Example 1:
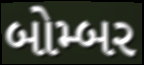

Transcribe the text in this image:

બોમ્બર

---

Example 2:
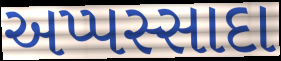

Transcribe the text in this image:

અપ્પસ્સાદા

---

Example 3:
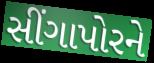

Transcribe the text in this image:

સીંગાપોરને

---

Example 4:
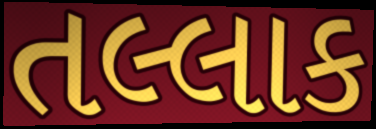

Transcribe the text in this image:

તલ્લાક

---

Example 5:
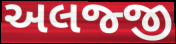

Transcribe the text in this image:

અલજ્જી